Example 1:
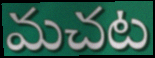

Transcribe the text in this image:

మచట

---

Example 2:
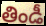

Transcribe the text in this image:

తిండీ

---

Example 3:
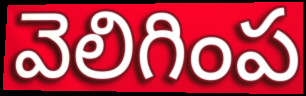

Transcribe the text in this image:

వెలిగింప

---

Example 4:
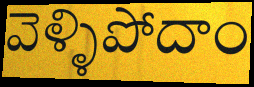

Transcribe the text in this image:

వెళ్ళిపోదాం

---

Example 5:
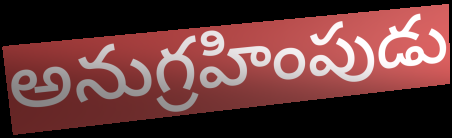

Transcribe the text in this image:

అనుగ్రహింపుడు